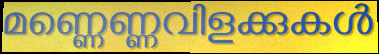
മണ്ണെണ്ണവിളക്കുകൾ